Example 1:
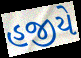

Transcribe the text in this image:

હજીયે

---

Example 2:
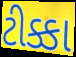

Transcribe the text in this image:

ટીક્કા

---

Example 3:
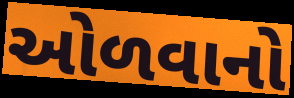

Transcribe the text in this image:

ઓળવાનો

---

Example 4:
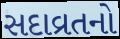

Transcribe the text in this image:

સદાવ્રતનો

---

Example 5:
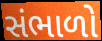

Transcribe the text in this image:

સંભાળો